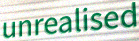
unrealised